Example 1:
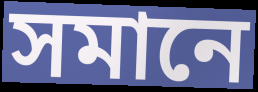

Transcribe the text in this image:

সমানে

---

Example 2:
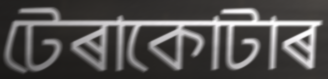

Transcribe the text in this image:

টেৰাকোটাৰ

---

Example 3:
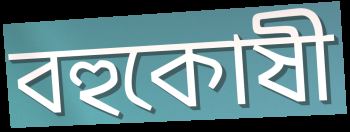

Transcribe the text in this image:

বহুকোষী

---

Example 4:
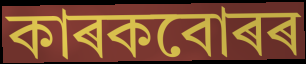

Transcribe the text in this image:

কাৰকবোৰৰ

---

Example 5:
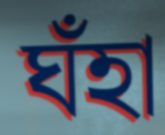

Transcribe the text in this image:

ঘঁহা